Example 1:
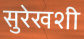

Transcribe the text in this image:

सुरेखशी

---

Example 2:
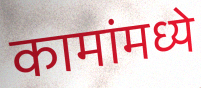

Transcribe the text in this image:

कामांमध्ये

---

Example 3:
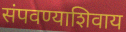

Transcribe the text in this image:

संपवण्याशिवाय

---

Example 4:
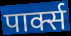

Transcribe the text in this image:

पार्क्स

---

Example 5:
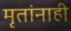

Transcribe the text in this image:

मृतांनाही